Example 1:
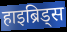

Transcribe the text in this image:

हाइब्रिड्स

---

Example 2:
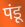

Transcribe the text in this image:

पंडू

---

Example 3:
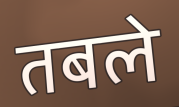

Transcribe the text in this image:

तबले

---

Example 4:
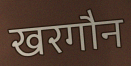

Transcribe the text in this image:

खरगौन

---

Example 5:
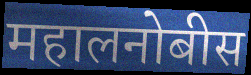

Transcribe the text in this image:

महालनोबीस